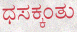
ಧಸಕ್ಕಂತು